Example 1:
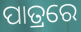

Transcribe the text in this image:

ପାତ୍ରରେ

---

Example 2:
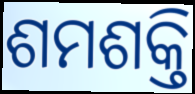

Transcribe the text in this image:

ଶମଶକ୍ତି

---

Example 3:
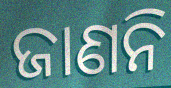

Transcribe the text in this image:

ଜାଣନି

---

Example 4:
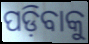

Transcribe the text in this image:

ପଡ଼ିବାକୁ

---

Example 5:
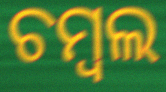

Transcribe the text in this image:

ଚମ୍ବଲ